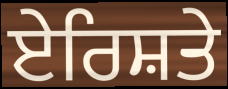
ਏਰਿਸ਼ਤੇ